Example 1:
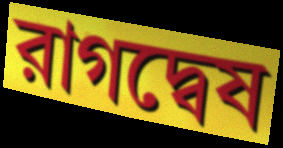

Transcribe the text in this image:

রাগদ্বেষ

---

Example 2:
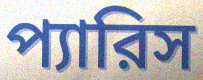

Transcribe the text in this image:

প্যারিস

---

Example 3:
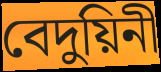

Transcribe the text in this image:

বেদুয়িনী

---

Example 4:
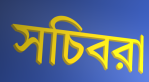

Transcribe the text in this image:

সচিবরা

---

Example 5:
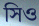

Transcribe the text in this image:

সিও